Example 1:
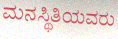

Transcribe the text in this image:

ಮನಸ್ಥಿತಿಯವರು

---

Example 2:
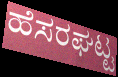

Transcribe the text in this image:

ಹೆಸರಘಟ್ಟ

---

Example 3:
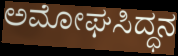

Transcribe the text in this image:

ಅಮೋಘಸಿದ್ಧನ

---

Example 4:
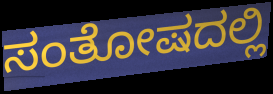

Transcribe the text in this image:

ಸಂತೋಷದಲ್ಲಿ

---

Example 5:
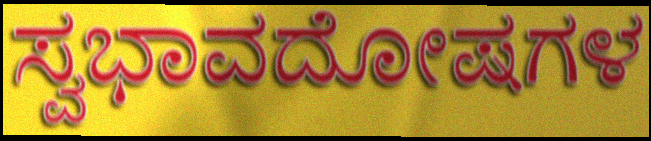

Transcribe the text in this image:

ಸ್ವಭಾವದೋಷಗಳ